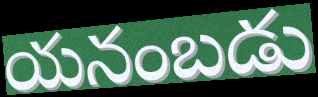
యనంబడు